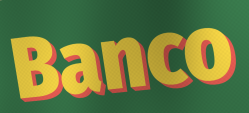
Banco